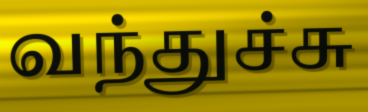
வந்துச்சு